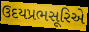
ઉદયપ્રભસૂરિએ